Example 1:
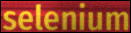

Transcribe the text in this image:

selenium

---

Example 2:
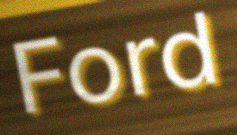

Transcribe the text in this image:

Ford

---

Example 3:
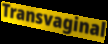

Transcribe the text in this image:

Transvaginal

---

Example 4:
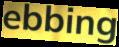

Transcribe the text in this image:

ebbing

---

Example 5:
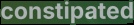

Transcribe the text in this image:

constipated